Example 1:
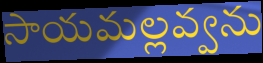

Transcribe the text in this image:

సాయమల్లవ్వను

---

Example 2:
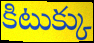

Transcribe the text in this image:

కిటుక్కు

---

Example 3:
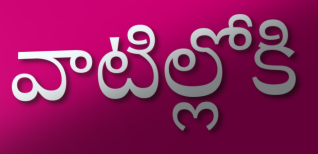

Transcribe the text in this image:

వాటిల్లోకి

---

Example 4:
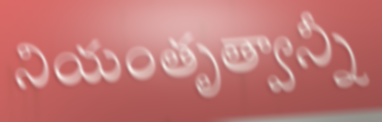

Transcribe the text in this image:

నియంతృత్వాన్నీ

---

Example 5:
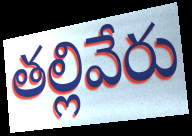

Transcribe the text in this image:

తల్లివేరు